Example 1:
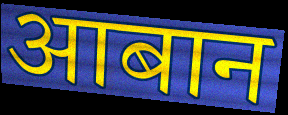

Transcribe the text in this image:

आबान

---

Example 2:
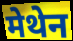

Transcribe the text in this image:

मेथेन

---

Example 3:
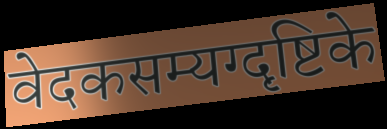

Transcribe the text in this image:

वेदकसम्यग्दृष्टिके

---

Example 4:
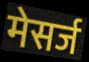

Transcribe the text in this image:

मेसर्ज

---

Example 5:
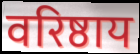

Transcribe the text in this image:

वरिष्ठाय